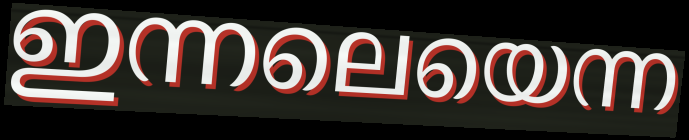
ഇന്നലെയെന്ന